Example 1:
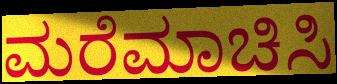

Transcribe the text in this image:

ಮರೆಮಾಚಿಸಿ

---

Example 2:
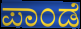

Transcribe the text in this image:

ಪಾಂಡೆ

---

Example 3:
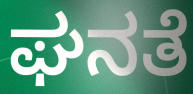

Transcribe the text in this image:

ಘನತೆ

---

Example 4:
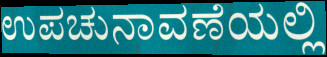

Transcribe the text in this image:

ಉಪಚುನಾವಣೆಯಲ್ಲಿ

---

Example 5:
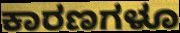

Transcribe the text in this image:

ಕಾರಣಗಳೂ